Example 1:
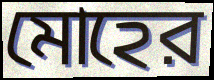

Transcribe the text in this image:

মোহের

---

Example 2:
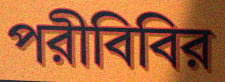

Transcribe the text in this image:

পরীবিবির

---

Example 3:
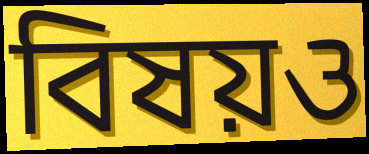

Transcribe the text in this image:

বিষয়ও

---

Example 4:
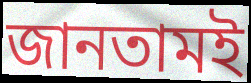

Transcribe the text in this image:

জানতামই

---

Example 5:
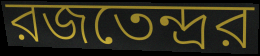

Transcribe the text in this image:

রজতেন্দ্রর